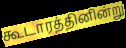
கூடாரத்தினின்று